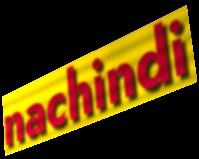
nachindi